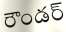
రౌండర్